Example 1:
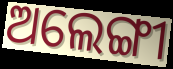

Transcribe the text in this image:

ଅଲେଙ୍ଗୀ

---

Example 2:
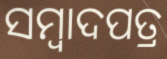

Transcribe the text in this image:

ସମ୍ବାଦପତ୍ର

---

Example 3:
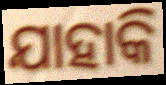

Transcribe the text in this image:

ଯାହାକି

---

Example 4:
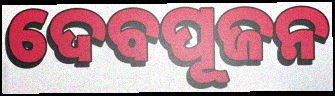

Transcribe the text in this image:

ଦେବପୂଜନ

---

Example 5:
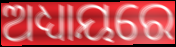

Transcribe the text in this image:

ଅଧ୍ୟାୟରେ